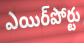
ఎయిర్‌పోర్టు